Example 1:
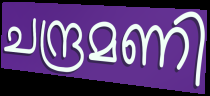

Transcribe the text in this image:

ചന്ദ്രമണി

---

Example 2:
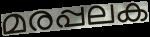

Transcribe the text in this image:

മരപ്പലക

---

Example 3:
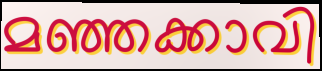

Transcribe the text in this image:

മഞ്ഞക്കാവി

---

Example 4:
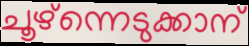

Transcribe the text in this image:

ചൂഴ്ന്നെടുക്കാന്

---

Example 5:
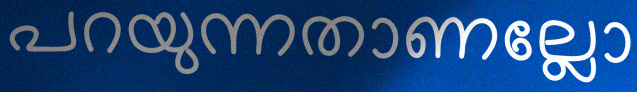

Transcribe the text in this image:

പറയുന്നതാണല്ലോ